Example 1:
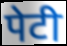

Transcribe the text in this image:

पेटी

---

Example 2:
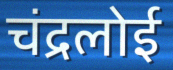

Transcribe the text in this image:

चंद्रलोई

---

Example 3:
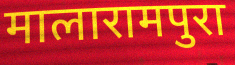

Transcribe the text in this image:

मालारामपुरा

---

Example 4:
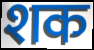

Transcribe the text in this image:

शक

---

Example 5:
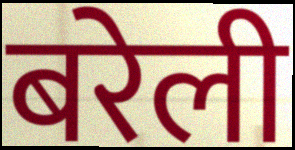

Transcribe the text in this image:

बरेली